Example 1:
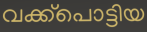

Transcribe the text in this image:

വക്ക്പൊട്ടിയ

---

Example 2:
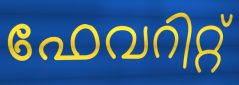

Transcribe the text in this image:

ഫേവറിറ്റ്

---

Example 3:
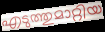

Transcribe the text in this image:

എടുത്തുമാറ്റിയ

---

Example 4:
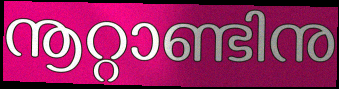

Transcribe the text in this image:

നൂറ്റാണ്ടിനു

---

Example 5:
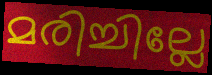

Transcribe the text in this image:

മരിച്ചില്ലേ